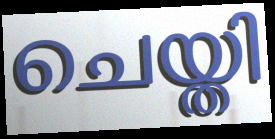
ചെയ്തി